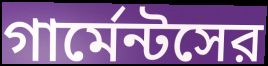
গার্মেন্টসের